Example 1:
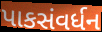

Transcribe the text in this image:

પાકસંવર્ધન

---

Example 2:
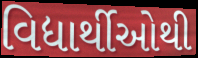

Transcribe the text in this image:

વિદ્યાર્થીઓથી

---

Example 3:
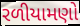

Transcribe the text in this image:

રળીયામણો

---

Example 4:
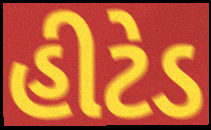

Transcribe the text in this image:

હીટેડ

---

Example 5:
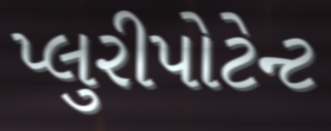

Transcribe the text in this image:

પ્લુરીપોટેન્ટ